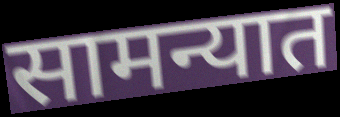
सामन्यात